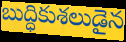
బుద్ధికుశలుడైన